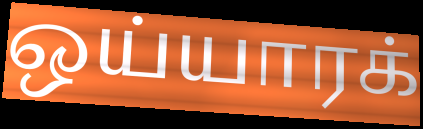
ஒய்யாரக்